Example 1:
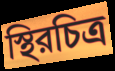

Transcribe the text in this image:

স্থিরচিত্র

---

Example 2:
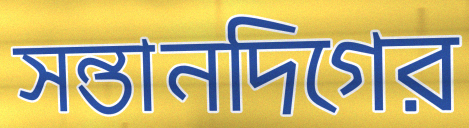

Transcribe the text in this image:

সন্তানদিগের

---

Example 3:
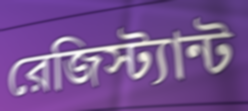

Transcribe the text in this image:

রেজিস্ট্যান্ট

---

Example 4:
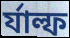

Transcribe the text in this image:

র্যাল্ফ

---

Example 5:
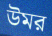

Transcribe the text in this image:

উমর